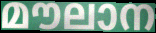
മൗലാന